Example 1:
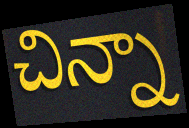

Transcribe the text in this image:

చిన్నా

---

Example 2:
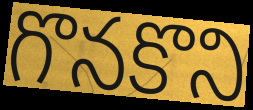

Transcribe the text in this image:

గొనకొని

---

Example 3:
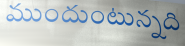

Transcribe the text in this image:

ముందుంటున్నది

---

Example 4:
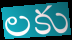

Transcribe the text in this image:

లకు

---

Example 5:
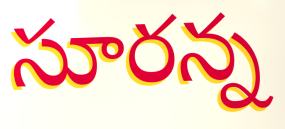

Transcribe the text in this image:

సూరన్న